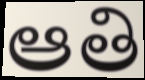
ఆతి